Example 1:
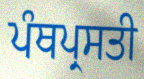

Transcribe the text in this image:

ਪੰਥਪ੍ਰਸਤੀ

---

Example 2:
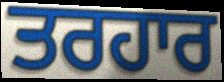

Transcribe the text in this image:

ਤਰਹਾਰ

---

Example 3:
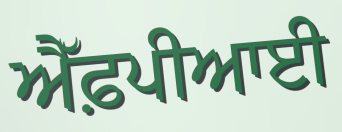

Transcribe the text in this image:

ਐੱਫ਼ਪੀਆਈ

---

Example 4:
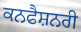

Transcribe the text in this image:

ਕਨਫੈਸ਼ਨਰੀ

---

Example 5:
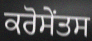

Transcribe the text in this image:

ਕਰੋਸੇਂਤਸ